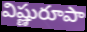
విష్ణురూపా